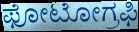
ಫೋಟೋಗ್ರಫಿ